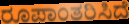
ರೂಪಾಂತರಿಸಿದೆ